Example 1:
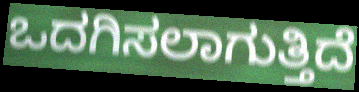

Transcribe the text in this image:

ಒದಗಿಸಲಾಗುತ್ತಿದೆ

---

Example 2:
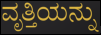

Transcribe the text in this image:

ವೃತ್ತಿಯನ್ನು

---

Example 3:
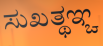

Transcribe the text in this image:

ಸುಖತ್ಥಞ್ಚ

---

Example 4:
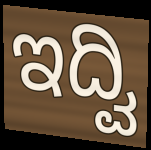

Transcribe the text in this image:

ಇದ್ವಿ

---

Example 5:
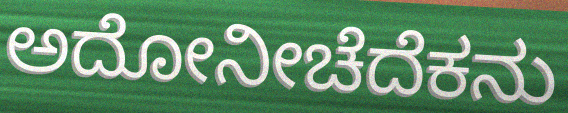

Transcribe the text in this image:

ಅದೋನೀಚೆದೆಕನು